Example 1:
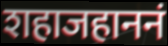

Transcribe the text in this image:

शहाजहाननं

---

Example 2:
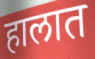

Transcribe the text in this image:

हालात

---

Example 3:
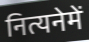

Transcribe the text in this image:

नित्यनेमें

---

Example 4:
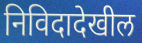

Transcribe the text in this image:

निविदादेखील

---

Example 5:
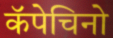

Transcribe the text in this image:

कॅपेचिनो